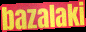
bazalaki